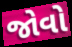
જોવો